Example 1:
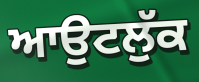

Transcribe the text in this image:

ਆਉਟਲੁੱਕ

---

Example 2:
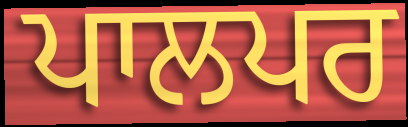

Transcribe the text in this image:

ਪਾਲਪਰ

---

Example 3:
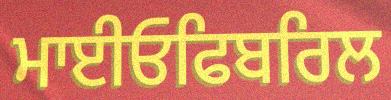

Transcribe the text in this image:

ਮਾਈਓਫਿਬਰਿਲ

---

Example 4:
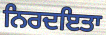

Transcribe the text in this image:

ਨਿਰਦਇਤਾ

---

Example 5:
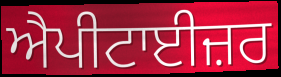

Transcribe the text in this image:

ਐਪੀਟਾਈਜ਼ਰ